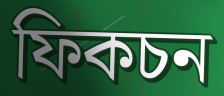
ফিকচন